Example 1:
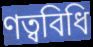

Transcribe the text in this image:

ণত্ববিধি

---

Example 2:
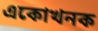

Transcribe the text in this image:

একোখনক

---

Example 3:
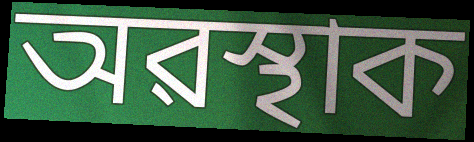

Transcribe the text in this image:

অৱস্থাক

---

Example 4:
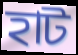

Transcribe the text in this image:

হাট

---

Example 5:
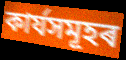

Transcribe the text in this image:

কাৰ্যসমূহৰ